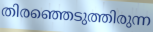
തിരഞ്ഞെടുത്തിരുന്ന